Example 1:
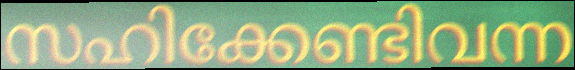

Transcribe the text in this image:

സഹിക്കേണ്ടിവന്ന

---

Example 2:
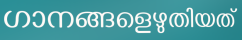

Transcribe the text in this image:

ഗാനങ്ങളെഴുതിയത്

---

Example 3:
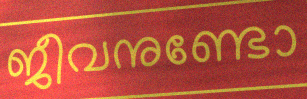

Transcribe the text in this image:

ജീവനുണ്ടോ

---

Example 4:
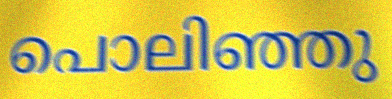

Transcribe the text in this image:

പൊലിഞ്ഞു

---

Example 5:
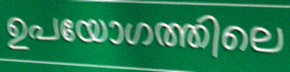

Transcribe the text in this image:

ഉപയോഗത്തിലെ